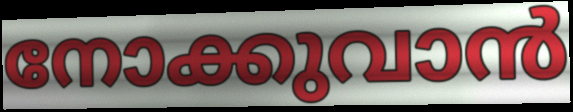
നോക്കുവാൻ